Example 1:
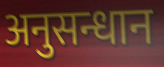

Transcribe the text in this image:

अनुसन्धान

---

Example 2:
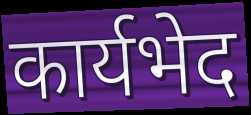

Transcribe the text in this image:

कार्यभेद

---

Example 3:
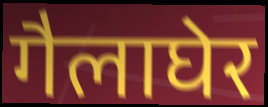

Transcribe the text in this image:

गैलाघेर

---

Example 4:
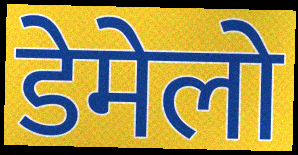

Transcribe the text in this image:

डेमेलो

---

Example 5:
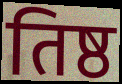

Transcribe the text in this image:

तिष्ठ